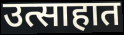
उत्साहात